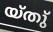
യ്തു്